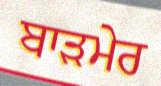
ਬਾੜਮੇਰ